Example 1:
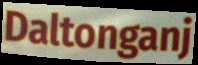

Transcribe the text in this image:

Daltonganj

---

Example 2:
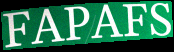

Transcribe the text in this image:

FAPAFS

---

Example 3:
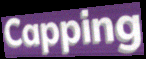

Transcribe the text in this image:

Capping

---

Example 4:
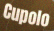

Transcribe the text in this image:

Cupolo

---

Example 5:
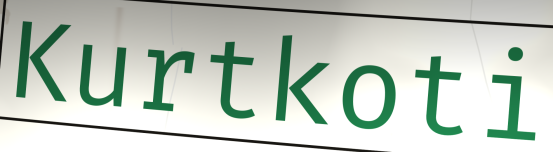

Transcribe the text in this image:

Kurtkoti